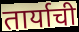
तार्याची